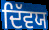
ਦਿੱਵਯ